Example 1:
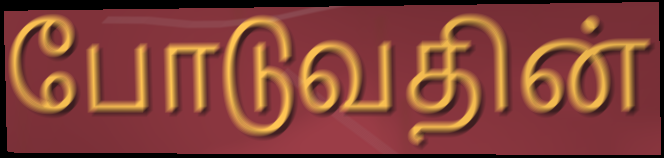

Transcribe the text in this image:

போடுவதின்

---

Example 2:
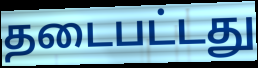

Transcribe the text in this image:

தடைபட்டது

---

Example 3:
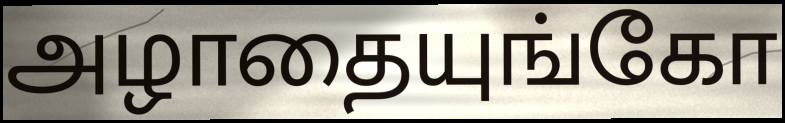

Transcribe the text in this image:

அழாதையுங்கோ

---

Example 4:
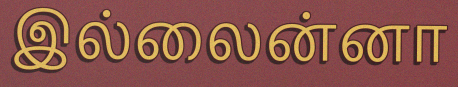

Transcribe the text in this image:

இல்லைன்னா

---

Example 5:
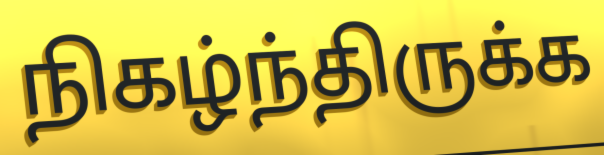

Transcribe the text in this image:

நிகழ்ந்திருக்க